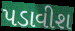
પડાવીશ